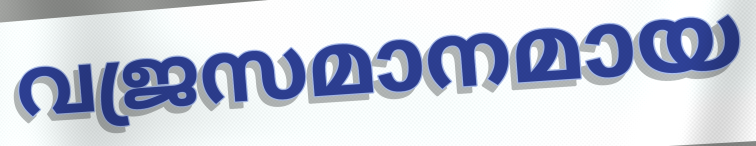
വജ്രസമാനമായ